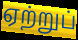
ஏற்றுப்